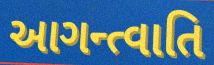
આગન્ત્વાતિ